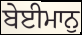
ਬੇਈਮਾਨੁ